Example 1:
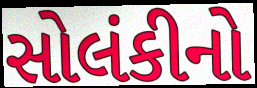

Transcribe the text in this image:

સોલંકીનો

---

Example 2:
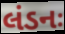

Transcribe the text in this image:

લંડનઃ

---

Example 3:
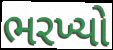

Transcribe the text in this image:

ભરખ્યો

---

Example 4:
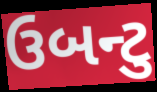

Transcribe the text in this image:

ઉબન્ટુ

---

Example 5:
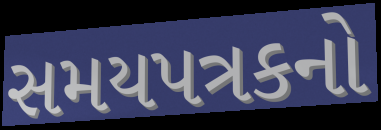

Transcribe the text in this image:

સમયપત્રકનો